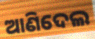
ଆଣିଦେଲ